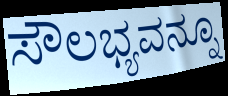
ಸೌಲಭ್ಯವನ್ನೂ